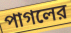
পাগলের